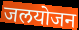
जलयोजन